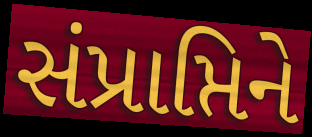
સંપ્રાપ્તિને